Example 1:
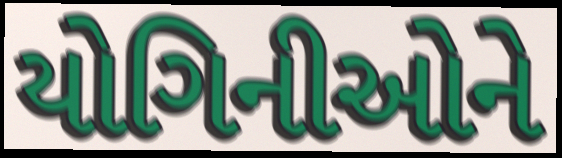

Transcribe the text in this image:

યોગિનીઓને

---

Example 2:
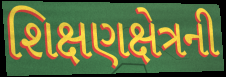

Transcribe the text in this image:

શિક્ષણક્ષેત્રની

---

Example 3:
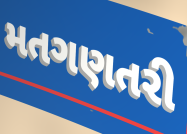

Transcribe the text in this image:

મતગણતરી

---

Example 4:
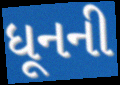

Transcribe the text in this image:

ધૂનની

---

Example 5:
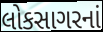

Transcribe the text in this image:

લોકસાગરનાં